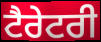
ਟੈਰੇਟਰੀ